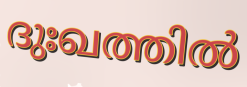
ദുഃഖത്തിൽ